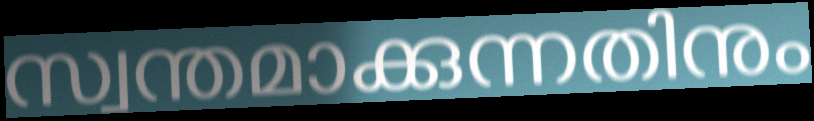
സ്വന്തമാക്കുന്നതിനും